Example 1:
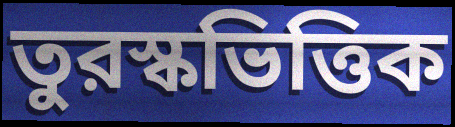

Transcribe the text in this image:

তুরস্কভিত্তিক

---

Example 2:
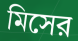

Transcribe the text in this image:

মিসের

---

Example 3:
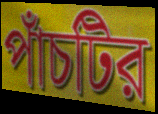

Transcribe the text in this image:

পাঁচটির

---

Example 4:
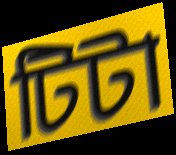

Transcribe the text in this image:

টিটা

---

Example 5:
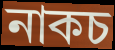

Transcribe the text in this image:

নাকচ